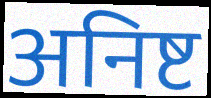
अनिष्ट